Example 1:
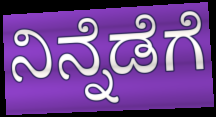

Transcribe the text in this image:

ನಿನ್ನೆಡೆಗೆ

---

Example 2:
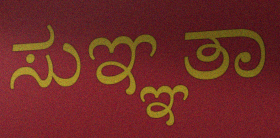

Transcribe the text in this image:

ಸುಞ್ಞತಾ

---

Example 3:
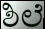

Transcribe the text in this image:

ಶಿಲೆ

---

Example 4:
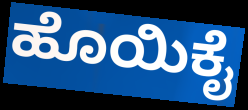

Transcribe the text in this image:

ಹೊಯಿಕೈ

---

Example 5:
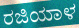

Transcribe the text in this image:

ರಜಿಯಾಳ